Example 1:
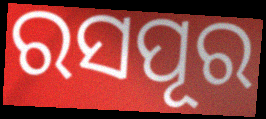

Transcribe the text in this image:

ରସପୂର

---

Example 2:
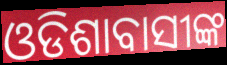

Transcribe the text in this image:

ଓଡିଶାବାସୀଙ୍କ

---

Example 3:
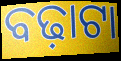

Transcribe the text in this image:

ବଢ଼ାଟା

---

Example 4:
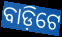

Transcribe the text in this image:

ବାଡ଼ିଟେ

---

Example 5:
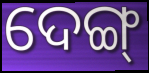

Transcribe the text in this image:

ଦେଙ୍ଗ୍